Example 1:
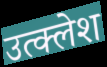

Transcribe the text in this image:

उत्क्लेश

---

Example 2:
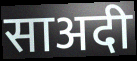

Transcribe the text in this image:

साअदी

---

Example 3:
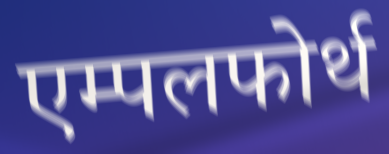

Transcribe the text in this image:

एम्पलफोर्थ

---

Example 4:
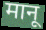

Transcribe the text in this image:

मानू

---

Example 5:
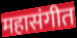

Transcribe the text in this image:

महासंगीत